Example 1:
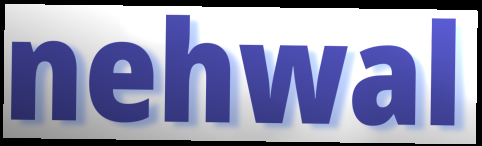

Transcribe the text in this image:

nehwal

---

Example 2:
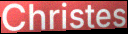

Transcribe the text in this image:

Christes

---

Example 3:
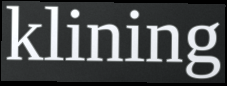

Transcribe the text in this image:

klining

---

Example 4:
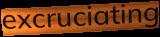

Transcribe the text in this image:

excruciating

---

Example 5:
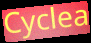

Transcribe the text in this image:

Cyclea